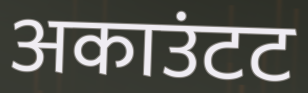
अकाउंटट